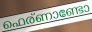
ഫെര്ണാണ്ടോ